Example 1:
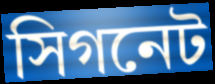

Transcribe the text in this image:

সিগনেট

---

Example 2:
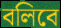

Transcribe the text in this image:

বলিবে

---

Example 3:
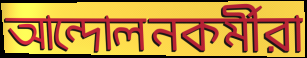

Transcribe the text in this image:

আন্দোলনকর্মীরা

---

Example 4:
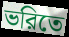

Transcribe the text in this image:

ভরিতে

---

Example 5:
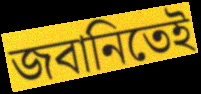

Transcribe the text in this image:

জবানিতেই